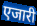
एजारी